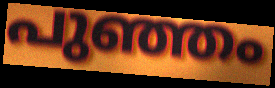
പുഞ്ഞം